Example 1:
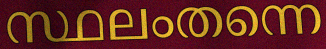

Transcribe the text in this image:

സ്ഥലംതന്നെ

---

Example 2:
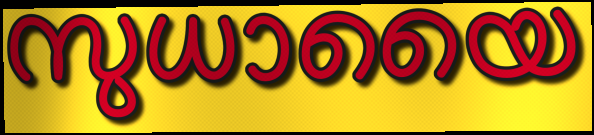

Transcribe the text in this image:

സുധായൈ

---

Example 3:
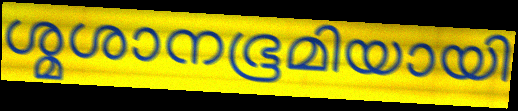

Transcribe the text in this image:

ശ്മശാനഭൂമിയായി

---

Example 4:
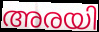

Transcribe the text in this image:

അരയി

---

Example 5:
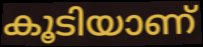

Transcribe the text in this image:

കൂടിയാണ്